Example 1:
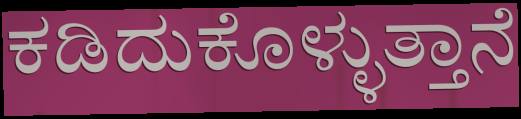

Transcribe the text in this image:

ಕಡಿದುಕೊಳ್ಳುತ್ತಾನೆ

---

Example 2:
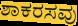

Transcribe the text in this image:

ಶಾಕರಸವು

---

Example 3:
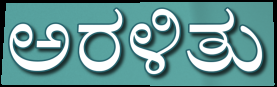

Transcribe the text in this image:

ಅರಳಿತು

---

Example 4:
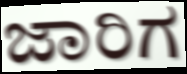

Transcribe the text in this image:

ಜಾರಿಗ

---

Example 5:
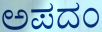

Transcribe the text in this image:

ಅಪದಂ